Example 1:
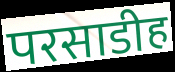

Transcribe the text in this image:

परसाडीह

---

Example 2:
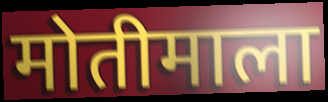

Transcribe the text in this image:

मोतीमाला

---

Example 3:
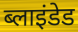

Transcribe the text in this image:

ब्लाइंडेड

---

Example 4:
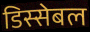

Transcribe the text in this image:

डिस्सेबल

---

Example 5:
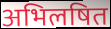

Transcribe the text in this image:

अभिलषित